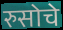
रुसोचे